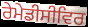
ਰੇਮੇਡੀਸੀਵਿਰ